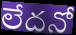
లేదనో